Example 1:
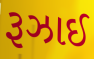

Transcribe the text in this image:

રૂઝાઈ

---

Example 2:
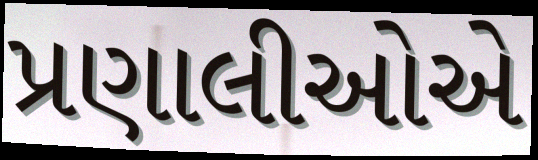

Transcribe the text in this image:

પ્રણાલીઓએ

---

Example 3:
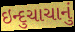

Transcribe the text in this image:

ઇન્દુચાચાનું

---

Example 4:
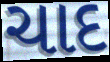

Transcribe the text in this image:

ચાદ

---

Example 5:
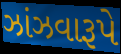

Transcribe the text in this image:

ઝાંઝવારૂપે